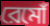
রেমোঁ